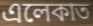
এলেকাত